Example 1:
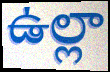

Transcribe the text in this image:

ఉల్లా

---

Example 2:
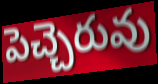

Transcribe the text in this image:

పెచ్చెరువు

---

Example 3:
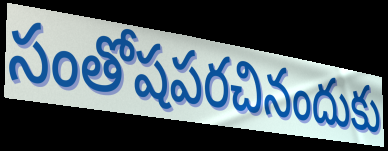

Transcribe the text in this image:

సంతోషపరచినందుకు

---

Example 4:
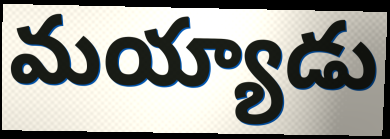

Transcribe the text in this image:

మయ్యాడు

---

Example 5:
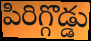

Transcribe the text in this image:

పిరిగ్గొడ్డు